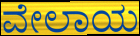
ವೇಲಾಯ